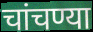
चांचण्या